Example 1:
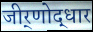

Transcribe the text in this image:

जीर्णोद्धार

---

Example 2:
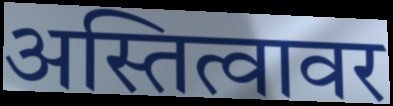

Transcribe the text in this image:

अस्तित्वावर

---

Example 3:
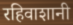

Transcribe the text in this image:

रहिवाशानी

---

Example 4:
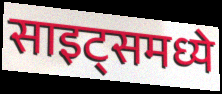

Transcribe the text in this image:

साइट्समध्ये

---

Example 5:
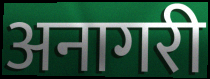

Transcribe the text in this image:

अनागरी